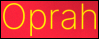
Oprah